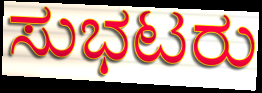
ಸುಭಟರು